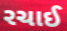
રચાઈ